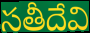
సతీదేవి